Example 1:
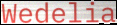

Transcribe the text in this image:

Wedelia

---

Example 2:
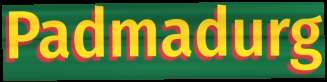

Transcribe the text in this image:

Padmadurg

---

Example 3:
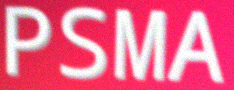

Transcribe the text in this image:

PSMA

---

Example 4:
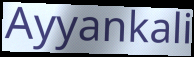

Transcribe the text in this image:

Ayyankali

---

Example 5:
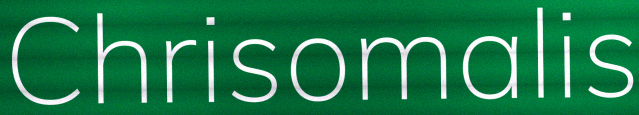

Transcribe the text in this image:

Chrisomalis